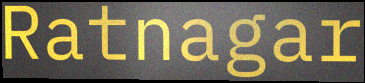
Ratnagar